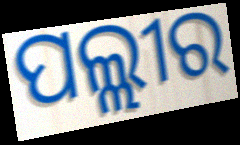
ପଲ୍ଲୀର